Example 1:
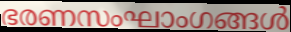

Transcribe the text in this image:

ഭരണസംഘാംഗങ്ങൾ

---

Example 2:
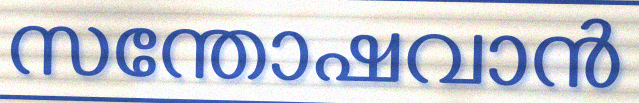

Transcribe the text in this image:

സന്തോഷവാൻ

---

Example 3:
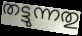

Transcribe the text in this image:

തട്ടുന്നതു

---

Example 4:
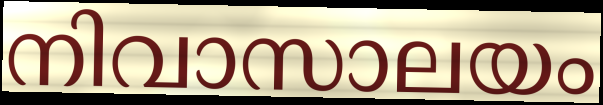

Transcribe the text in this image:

നിവാസാലയം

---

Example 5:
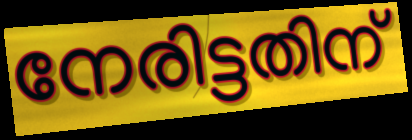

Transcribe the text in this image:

നേരിട്ടതിന്